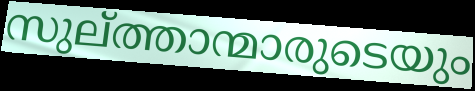
സുല്ത്താന്മാരുടെയും